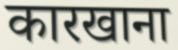
कारखाना